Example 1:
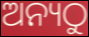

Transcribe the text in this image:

ଅନ୍ୟଠୁ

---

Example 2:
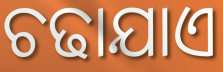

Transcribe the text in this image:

ଚଢାଯାଏ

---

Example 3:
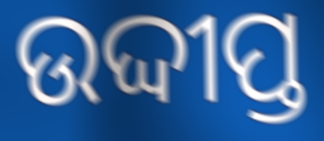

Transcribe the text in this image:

ଉଦ୍ଦୀପ୍ତ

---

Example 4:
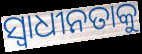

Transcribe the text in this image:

ସ୍ୱାଧୀନତାକୁ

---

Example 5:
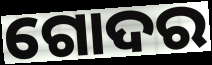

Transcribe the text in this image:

ଗୋଦର